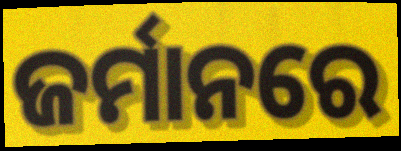
ଜର୍ମାନରେ